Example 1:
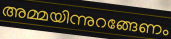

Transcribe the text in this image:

അമ്മയിന്നുറങ്ങേണം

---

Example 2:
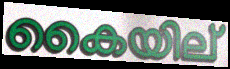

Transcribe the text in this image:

കൈയില്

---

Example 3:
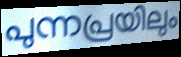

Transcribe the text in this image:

പുന്നപ്രയിലും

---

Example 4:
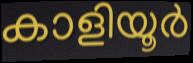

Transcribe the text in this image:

കാളിയൂർ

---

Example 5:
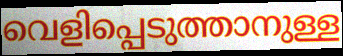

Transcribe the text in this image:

വെളിപ്പെടുത്താനുള്ള